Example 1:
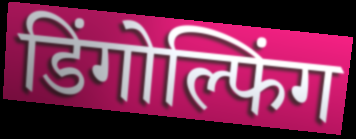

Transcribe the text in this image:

डिंगोल्फिंग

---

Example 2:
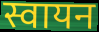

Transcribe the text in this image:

स्वायन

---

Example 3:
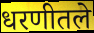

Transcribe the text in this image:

धरणीतले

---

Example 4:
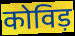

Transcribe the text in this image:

कोविड़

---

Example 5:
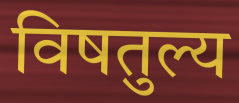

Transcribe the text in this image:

विषतुल्य